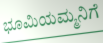
ಭೂಮಿಯಮ್ಮನಿಗೆ